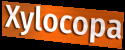
Xylocopa